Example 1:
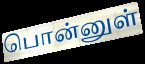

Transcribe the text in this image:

பொன்னுள்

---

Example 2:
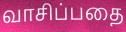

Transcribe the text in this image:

வாசிப்பதை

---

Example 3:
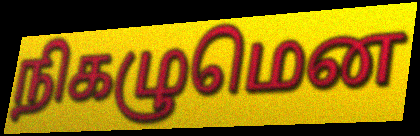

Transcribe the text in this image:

நிகழுமென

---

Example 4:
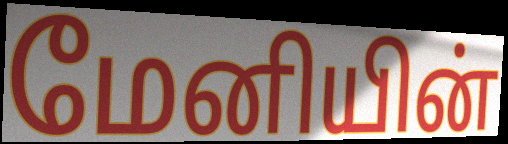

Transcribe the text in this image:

மேனியின்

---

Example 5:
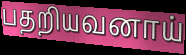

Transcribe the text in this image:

பதறியவனாய்